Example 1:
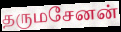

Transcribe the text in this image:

தருமசேனன்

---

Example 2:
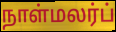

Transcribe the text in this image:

நாள்மலர்ப்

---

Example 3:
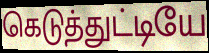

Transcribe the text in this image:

கெடுத்துட்டியே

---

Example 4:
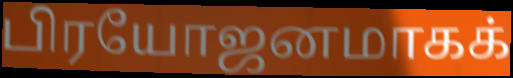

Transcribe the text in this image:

பிரயோஜனமாகக்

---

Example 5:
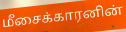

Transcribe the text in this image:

மீசைக்காரனின்